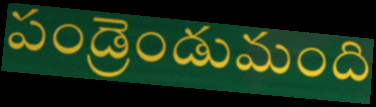
పండ్రెండుమంది